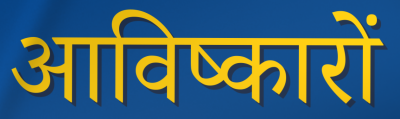
आविष्कारों